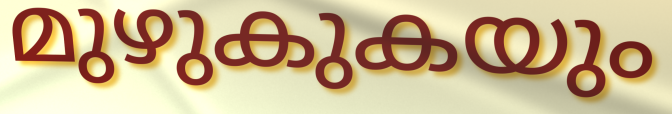
മുഴുകുകയും